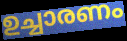
ഉച്ചാരണം